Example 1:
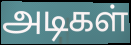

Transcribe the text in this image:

அடிகள்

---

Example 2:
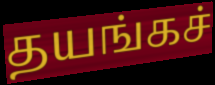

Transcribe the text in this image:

தயங்கச்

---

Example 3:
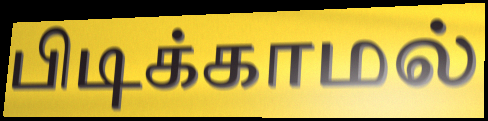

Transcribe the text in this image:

பிடிக்காமல்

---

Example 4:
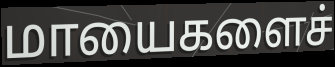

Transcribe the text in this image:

மாயைகளைச்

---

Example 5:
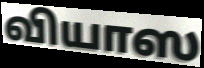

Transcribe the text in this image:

வியாஸ